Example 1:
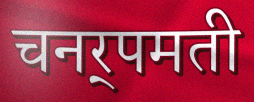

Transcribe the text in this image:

चनर्पमती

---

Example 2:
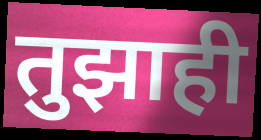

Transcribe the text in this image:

तुझाही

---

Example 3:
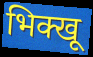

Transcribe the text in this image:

भिक्खू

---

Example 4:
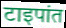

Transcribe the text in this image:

टाइपांत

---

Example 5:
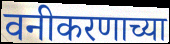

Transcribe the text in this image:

वनीकरणाच्या